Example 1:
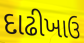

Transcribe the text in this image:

દાઢીખાઉ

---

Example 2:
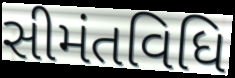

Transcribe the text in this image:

સીમંતવિધિ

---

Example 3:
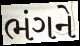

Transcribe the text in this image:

ભંગને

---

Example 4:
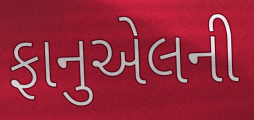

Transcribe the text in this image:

ફાનુએલની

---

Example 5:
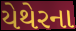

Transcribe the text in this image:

યેથેરના